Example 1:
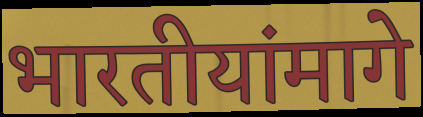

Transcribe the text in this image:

भारतीयांमागे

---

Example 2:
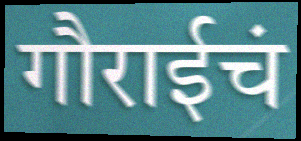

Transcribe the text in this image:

गौराईचं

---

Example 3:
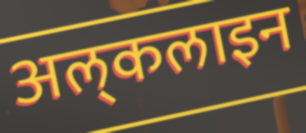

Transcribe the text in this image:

अल्कलाइन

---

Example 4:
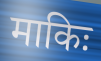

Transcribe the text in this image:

माकिः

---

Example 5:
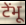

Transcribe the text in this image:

टेंभू